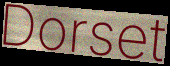
Dorset